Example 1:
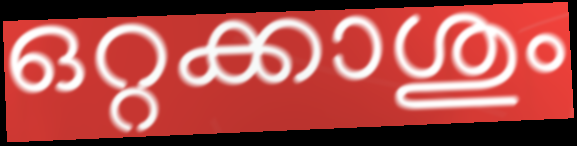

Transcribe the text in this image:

ഒറ്റക്കാശും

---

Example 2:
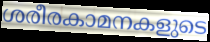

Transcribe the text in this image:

ശരീരകാമനകളുടെ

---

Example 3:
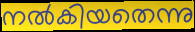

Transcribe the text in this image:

നൽകിയതെന്നു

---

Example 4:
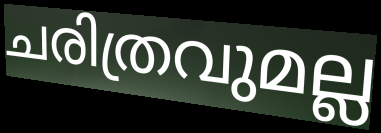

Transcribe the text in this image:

ചരിത്രവുമല്ല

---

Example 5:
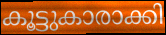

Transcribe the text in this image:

കൂട്ടുകാരാക്കി